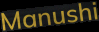
Manushi